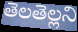
తెలతెల్లని